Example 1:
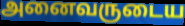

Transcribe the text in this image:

அனைவருடைய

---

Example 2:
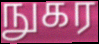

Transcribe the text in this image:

நுகர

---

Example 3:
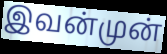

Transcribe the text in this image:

இவன்முன்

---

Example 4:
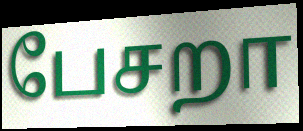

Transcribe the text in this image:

பேசறா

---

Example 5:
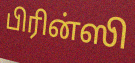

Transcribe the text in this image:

பிரின்ஸி